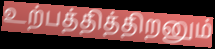
உற்பத்தித்திறனும்